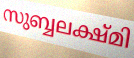
സുബ്ബലക്ഷ്മി